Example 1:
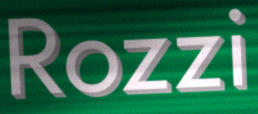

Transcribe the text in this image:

Rozzi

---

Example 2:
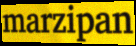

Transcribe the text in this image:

marzipan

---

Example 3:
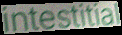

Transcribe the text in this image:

intestitial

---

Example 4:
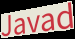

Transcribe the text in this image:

Javad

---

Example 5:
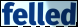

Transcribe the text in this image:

felled